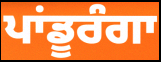
ਪਾਂਡੂਰੰਗਾ